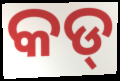
କଡ୍